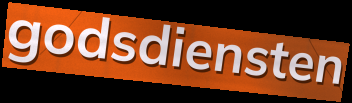
godsdiensten